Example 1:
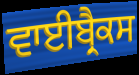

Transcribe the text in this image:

ਵਾਈਬ੍ਰੈਕਸ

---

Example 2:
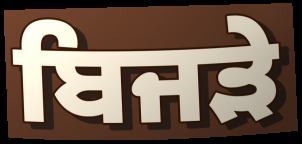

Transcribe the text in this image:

ਬਿਜੜੇ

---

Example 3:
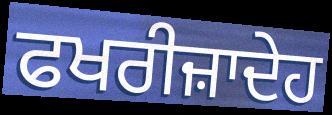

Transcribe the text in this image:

ਫਖਰੀਜ਼ਾਦੇਹ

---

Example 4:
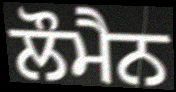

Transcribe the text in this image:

ਲੌਮੈਨ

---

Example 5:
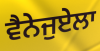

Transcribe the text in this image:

ਵੈਨੇਜੁਏਲਾ